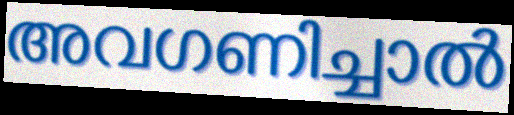
അവഗണിച്ചാൽ